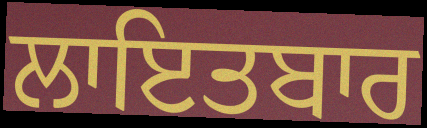
ਲਾਇਤਬਾਰ